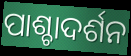
ପାଶ୍ଚାଦର୍ଶନ